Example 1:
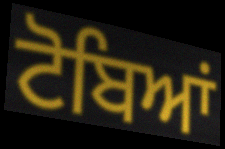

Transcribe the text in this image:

ਟੋਬਿਆਂ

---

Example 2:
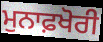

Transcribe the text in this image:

ਮੁਨਾਫ਼ਖੋਰੀ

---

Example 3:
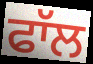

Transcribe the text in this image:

ਫਾੱਲ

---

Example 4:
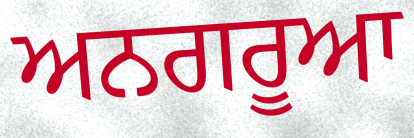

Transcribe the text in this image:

ਅਨਗਰੂਆ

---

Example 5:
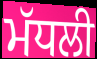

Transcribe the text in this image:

ਮੱਧਲੀ